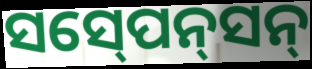
ସସ୍‍ପେନ୍‍ସନ୍